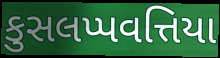
કુસલપ્પવત્તિયા